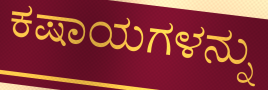
ಕಷಾಯಗಳನ್ನು